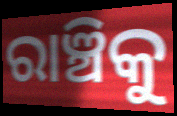
ରାଞ୍ଚିକୁ